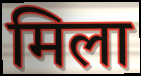
मिला